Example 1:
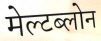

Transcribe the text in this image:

मेल्टब्लोन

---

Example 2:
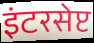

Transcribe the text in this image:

इंटरसेप्ट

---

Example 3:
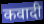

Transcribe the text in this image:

कवादी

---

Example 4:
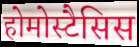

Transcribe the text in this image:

होमोस्टैसिस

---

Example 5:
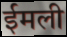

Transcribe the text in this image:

ईमली